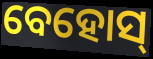
ବେହୋସ୍